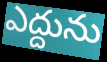
ఎద్దును